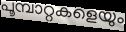
പൂമ്പാറ്റകളെയും